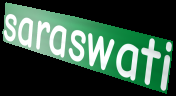
saraswati